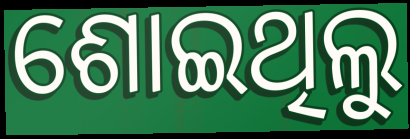
ଶୋଇଥିଲୁ